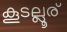
കൂടല്ലൂര്